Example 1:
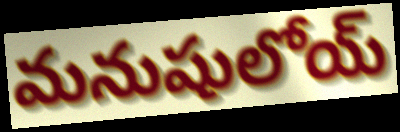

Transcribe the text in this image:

మనుషులోయ్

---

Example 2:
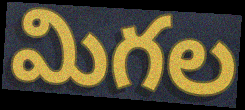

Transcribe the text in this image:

మిగల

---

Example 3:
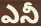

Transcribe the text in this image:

ఎనీ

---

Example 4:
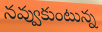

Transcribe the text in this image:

నవ్వుకుంటున్న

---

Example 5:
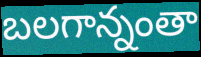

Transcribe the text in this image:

బలగాన్నంతా